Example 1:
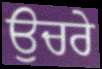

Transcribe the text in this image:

ਉਚਰੇ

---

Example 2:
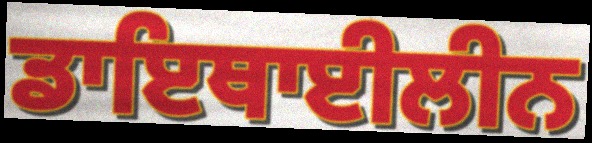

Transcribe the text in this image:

ਡਾਇਥਾਈਲੀਨ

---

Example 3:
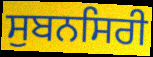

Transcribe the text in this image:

ਸੁਬਨਸਿਰੀ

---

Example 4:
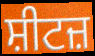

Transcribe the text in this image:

ਸ਼ੀਟਜ਼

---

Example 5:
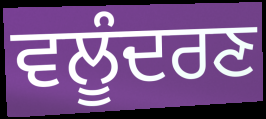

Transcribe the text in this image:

ਵਲੂੰਦਰਣ